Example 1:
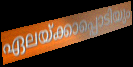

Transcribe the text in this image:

ഏലയ്ക്കാപ്പൊടിയും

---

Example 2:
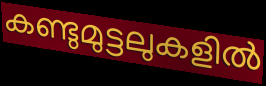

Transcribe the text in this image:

കണ്ടുമുട്ടലുകളിൽ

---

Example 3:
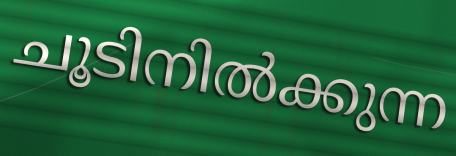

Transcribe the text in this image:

ചൂടിനിൽക്കുന്ന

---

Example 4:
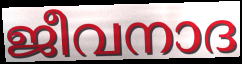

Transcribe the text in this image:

ജീവനാദ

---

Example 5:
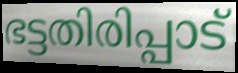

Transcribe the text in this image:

ഭട്ടതിരിപ്പാട്